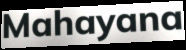
Mahayana